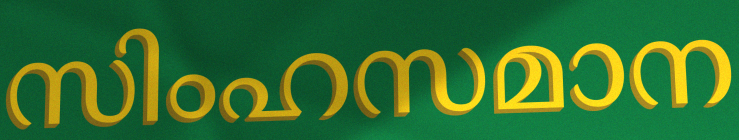
സിംഹസമാന